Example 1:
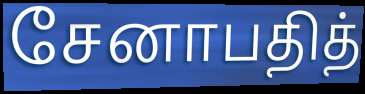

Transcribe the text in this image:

சேனாபதித்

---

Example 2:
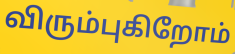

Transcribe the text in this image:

விரும்புகிறோம்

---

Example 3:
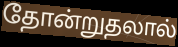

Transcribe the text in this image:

தோன்றுதலால்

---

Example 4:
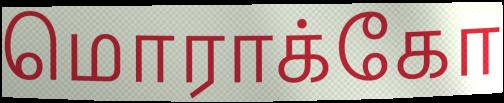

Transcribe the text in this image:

மொராக்கோ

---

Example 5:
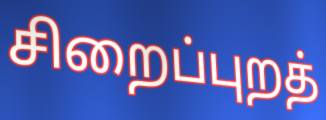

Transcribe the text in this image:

சிறைப்புறத்